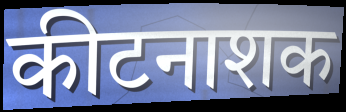
कीटनाशक